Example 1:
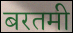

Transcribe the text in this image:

बरतमी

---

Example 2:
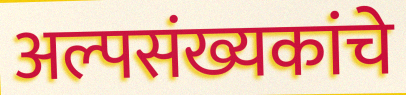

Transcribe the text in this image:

अल्पसंख्यकांचे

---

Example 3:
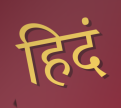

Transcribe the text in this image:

हिदं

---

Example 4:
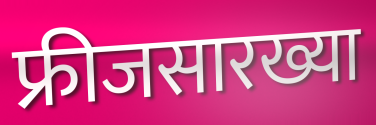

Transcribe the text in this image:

फ्रीजसारख्या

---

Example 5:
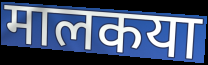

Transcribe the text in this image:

मालकया